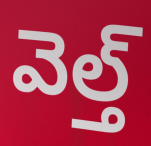
వెల్త్